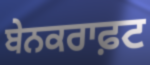
ਬੇਨਕਰਾਫ਼ਟ